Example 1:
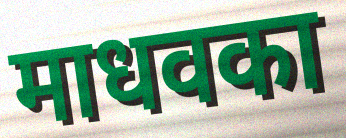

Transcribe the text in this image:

माधवका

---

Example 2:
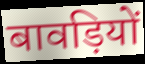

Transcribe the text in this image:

बावड़ियों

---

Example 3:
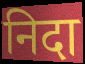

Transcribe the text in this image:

निदा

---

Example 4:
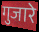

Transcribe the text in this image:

गुजारे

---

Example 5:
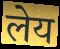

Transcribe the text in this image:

लेय